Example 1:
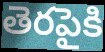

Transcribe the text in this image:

తెరపైకి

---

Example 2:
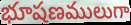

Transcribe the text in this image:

భూషణములుగా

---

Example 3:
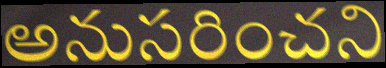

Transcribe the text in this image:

అనుసరించని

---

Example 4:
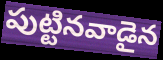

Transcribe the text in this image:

పుట్టినవాడైన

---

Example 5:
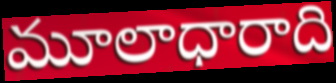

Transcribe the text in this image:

మూలాధారాది